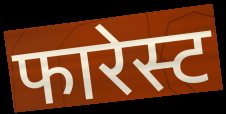
फारेस्ट